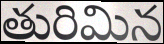
తురిమిన